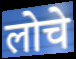
लोचे